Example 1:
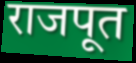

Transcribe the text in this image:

राजपूत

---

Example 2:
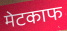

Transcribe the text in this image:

मेटकाफ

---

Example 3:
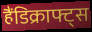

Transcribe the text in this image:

हैंडिक्राफ्ट्स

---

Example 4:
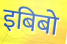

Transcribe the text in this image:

इबिबो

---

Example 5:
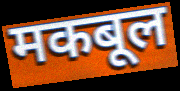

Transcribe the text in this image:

मकबूल